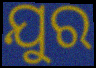
ଯୁର